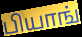
பியாங்